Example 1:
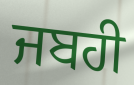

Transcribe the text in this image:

ਜਬਹੀ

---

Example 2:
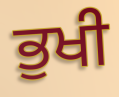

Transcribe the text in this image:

ਭੁਖੀ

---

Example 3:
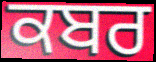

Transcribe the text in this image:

ਕਬਰ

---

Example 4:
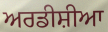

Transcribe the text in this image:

ਅਰਡੀਸ਼ੀਆ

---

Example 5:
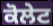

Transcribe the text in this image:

ਕੋਲੇਟ